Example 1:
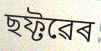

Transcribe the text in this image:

ছফ্টৱেৰ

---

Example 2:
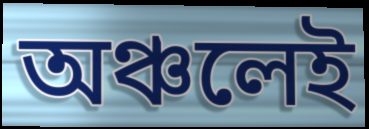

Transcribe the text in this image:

অঞ্চলেই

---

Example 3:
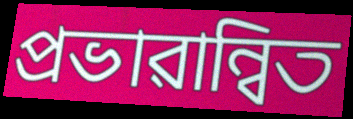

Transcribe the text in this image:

প্ৰভাৱান্বিত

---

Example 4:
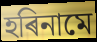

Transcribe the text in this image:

হৰিনামে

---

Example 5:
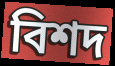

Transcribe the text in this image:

বিশদ